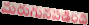
మరుగునపడింది